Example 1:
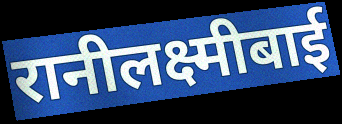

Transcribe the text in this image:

रानीलक्ष्मीबाई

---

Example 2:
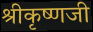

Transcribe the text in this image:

श्रीकृष्णजी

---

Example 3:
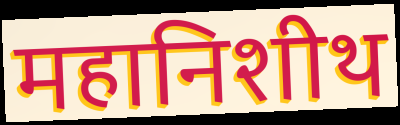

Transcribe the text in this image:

महानिशीथ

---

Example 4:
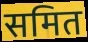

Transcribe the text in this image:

समित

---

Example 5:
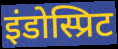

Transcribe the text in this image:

इंडोस्प्रिट